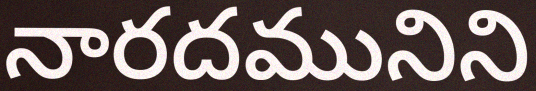
నారదమునిని